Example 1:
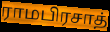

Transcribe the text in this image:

ராமபிரசாத்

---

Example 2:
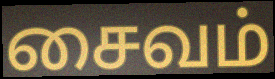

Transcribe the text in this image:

சைவம்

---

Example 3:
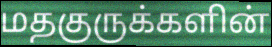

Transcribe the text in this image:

மதகுருக்களின்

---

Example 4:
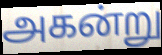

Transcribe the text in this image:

அகன்று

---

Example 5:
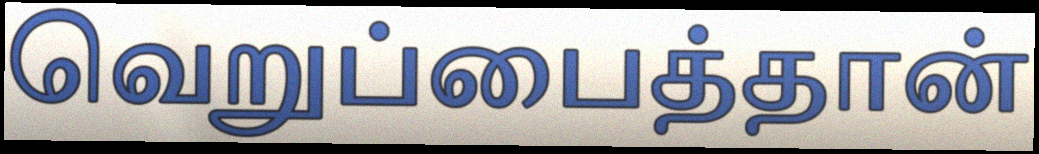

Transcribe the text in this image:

வெறுப்பைத்தான்